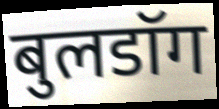
बुलडॉग